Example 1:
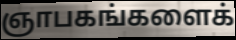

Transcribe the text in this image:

ஞாபகங்களைக்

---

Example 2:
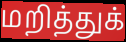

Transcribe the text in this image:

மறித்துக்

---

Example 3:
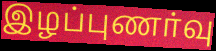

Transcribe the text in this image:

இழப்புணர்வு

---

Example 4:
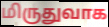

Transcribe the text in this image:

மிருதுவாக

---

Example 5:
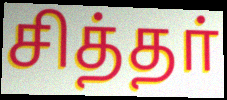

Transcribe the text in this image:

சித்தர்